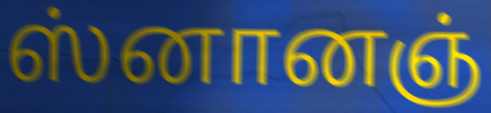
ஸ்னானஞ்